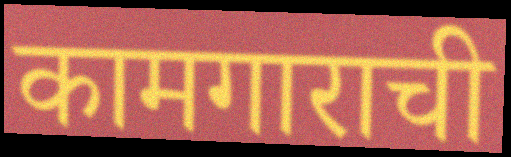
कामगाराची